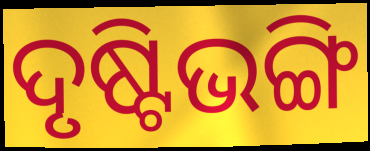
ଦୃଷ୍ଟିଭଙ୍ଗି